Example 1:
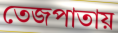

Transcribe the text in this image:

তেজপাতায়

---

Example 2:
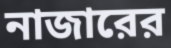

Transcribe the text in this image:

নাজারের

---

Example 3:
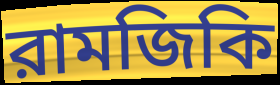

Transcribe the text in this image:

রামজিকি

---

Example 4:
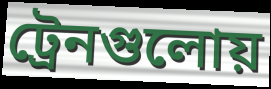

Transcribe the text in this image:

ট্রেনগুলোয়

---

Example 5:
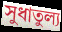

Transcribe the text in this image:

সুধাতুল্য